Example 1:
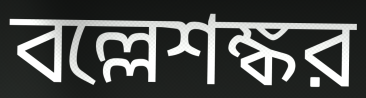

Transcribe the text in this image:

বল্লেশঙ্কর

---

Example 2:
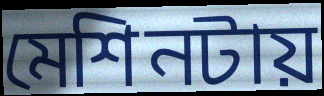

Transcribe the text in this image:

মেশিনটায়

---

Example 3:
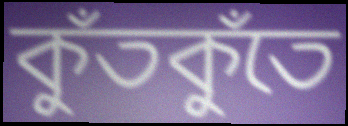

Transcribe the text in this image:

কুঁতকুঁতে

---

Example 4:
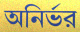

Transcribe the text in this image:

অনির্ভর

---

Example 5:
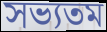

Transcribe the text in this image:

সভ্যতম